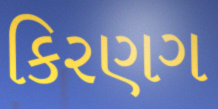
કિરણગ